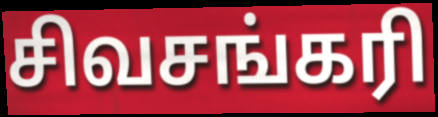
சிவசங்கரி